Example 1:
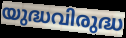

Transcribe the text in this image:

യുദ്ധവിരുദ്ധ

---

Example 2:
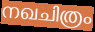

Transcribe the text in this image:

നഖചിത്രം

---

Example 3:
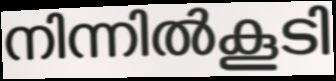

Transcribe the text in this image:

നിന്നിൽകൂടി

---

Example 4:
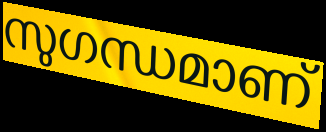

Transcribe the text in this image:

സുഗന്ധമാണ്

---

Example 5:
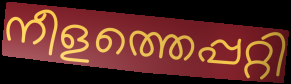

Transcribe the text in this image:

നീളത്തെപ്പറ്റി